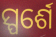
ସ୍ପର୍ଶେ